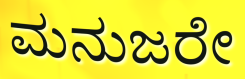
ಮನುಜರೇ